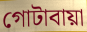
গোটাবায়া